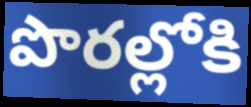
పొరల్లోకి